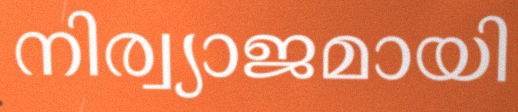
നിര്വ്യാജമായി